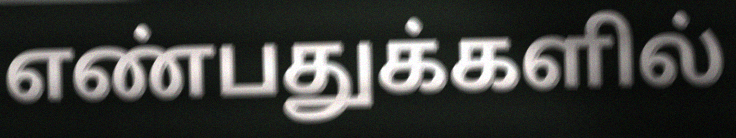
எண்பதுக்களில்